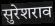
सुरेशराव